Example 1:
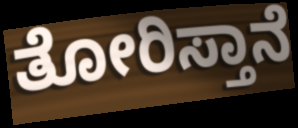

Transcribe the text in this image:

ತೋರಿಸ್ತಾನೆ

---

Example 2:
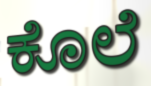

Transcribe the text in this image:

ಕೊಲೆ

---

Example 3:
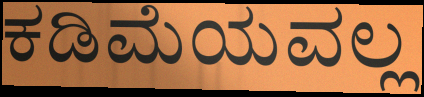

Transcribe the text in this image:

ಕಡಿಮೆಯವಲ್ಲ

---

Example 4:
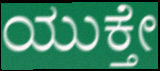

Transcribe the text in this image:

ಯುಕ್ತೇ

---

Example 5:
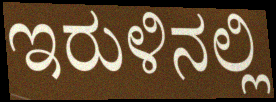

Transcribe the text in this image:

ಇರುಳಿನಲ್ಲಿ